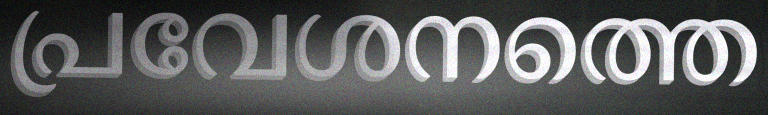
പ്രവേശനത്തെ